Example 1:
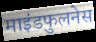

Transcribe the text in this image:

माइंडफुलनेस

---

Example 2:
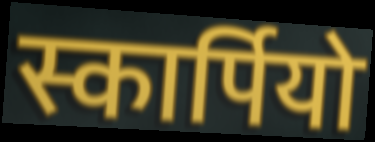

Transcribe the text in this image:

स्कार्पियो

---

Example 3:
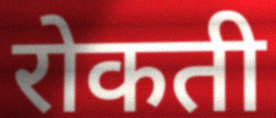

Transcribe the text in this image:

रोकती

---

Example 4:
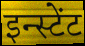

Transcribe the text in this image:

इन्स्टेंट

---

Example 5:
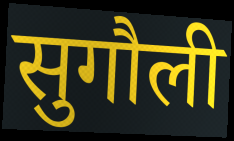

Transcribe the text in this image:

सुगौली